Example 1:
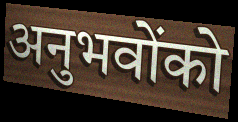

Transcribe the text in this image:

अनुभवोंको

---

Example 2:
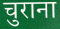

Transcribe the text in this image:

चुराना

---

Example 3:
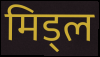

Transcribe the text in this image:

मिड्ल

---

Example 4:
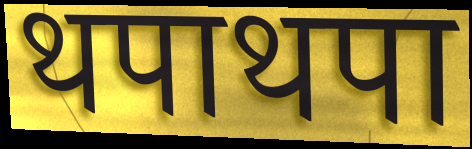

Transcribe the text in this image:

थपाथपा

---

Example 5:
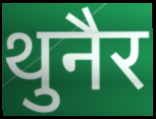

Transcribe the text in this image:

थुनैर